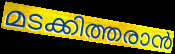
മടക്കിത്തരാൻ